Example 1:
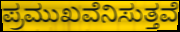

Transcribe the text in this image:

ಪ್ರಮುಖವೆನಿಸುತ್ತವೆ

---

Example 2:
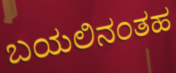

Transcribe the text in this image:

ಬಯಲಿನಂತಹ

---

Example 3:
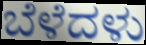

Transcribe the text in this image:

ಬೆಳೆದಳು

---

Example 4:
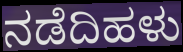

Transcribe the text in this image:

ನಡೆದಿಹಳು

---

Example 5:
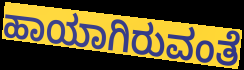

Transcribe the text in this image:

ಹಾಯಾಗಿರುವಂತೆ